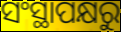
ସଂସ୍ଥାପକ୍ଷରୁ